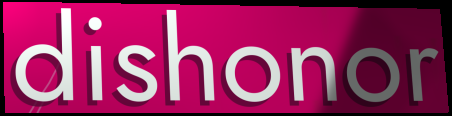
dishonor